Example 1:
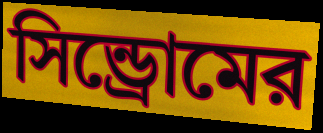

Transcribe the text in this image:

সিন্ড্রোমের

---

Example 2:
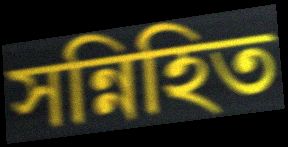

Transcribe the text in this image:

সন্নিহিত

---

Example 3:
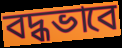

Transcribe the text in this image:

বদ্ধভাবে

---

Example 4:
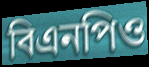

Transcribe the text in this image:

বিএনপিও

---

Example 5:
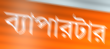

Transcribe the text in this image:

ব্যাপারটার